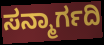
ಸನ್ಮಾರ್ಗದಿ